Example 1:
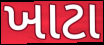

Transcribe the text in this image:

ખાટા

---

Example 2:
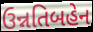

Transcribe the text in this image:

ઉન્નતિબહેન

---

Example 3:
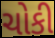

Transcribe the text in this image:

ચોકી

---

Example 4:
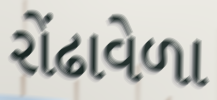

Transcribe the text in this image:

રોંઢાવેળા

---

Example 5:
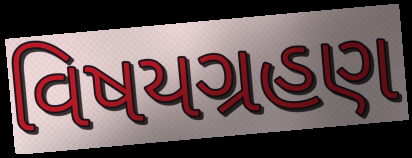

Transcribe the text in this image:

વિષયગ્રહણ